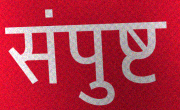
संपुष्ट